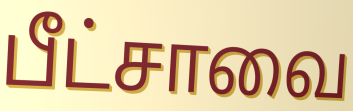
பீட்சாவை